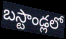
బస్టాండ్లలో